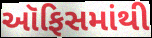
ઑફિસમાંથી